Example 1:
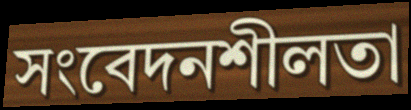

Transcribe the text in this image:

সংবেদনশীলতা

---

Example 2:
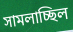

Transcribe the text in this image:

সামলাচ্ছিল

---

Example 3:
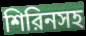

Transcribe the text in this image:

শিরিনসহ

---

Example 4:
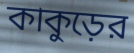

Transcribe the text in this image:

কাকুড়ের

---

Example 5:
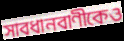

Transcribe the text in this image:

সাবধানবাণীকেও